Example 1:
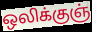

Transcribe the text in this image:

ஒலிக்குஞ்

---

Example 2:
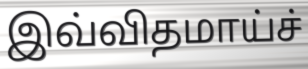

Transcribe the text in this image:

இவ்விதமாய்ச்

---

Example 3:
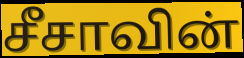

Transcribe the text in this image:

சீசாவின்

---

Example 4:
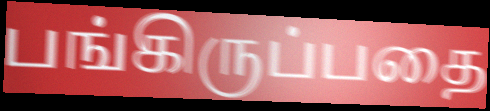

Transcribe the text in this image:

பங்கிருப்பதை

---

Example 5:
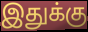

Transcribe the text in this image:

இதுக்கு